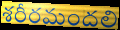
శరీరమందలి